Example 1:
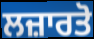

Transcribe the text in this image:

ਲਜ਼ਾਰਤੋ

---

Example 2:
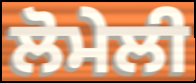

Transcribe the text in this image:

ਲੋਮੇਲੀ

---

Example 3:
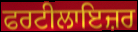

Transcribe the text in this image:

ਫਰਟੀਲਾਇਜ਼ਰ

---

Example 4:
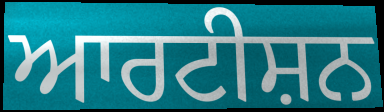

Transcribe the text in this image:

ਆਰਟੀਸ਼ਨ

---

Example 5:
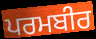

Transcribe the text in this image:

ਪਰਮਬੀਰ